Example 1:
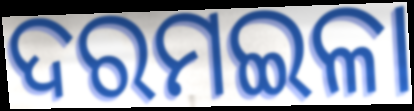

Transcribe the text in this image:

ଦରମଇଳା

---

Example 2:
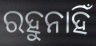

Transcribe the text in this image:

ରହୁନାହିଁ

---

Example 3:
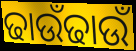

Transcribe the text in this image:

ଢାଉଁଢାଉଁ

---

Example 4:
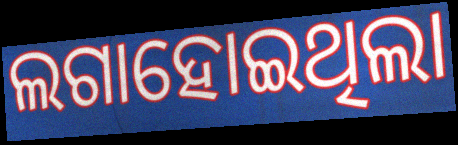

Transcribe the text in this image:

ଲଗାହୋଇଥିଲା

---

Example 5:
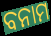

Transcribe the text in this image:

ବନାମ